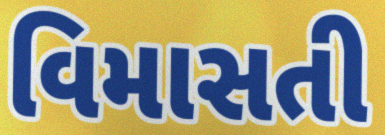
વિમાસતી